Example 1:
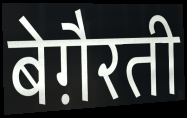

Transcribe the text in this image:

बेग़ैरती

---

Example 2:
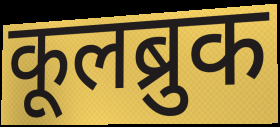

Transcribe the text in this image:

कूलब्रुक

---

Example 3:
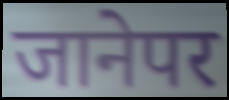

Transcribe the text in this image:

जानेपर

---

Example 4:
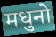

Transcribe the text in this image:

मधुनो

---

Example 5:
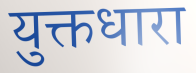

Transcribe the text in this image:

युक्तधारा